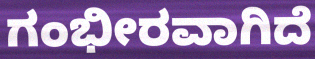
ಗಂಭೀರವಾಗಿದೆ